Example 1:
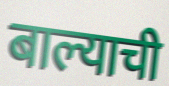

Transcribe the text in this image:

बाल्याची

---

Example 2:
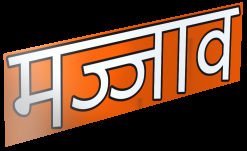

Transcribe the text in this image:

मज्जाव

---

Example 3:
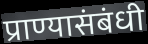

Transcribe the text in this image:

प्राण्यासंबंधी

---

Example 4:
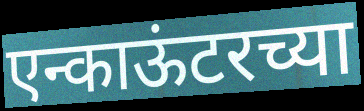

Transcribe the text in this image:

एन्काऊंटरच्या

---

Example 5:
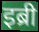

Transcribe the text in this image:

इब्री